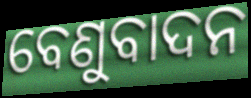
ବେଣୁବାଦନ